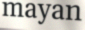
mayan